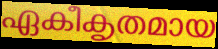
ഏകീകൃതമായ